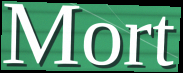
Mort